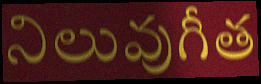
నిలువుగీత